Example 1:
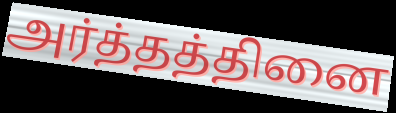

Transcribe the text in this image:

அர்த்தத்தினை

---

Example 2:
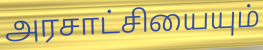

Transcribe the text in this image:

அரசாட்சியையும்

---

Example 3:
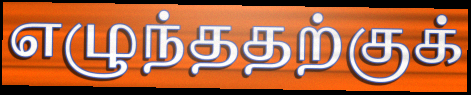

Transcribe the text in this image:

எழுந்ததற்குக்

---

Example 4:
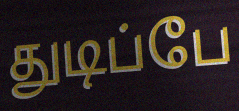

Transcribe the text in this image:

துடிப்பே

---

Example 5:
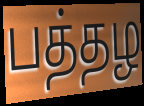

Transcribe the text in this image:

பத்தழ